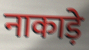
नाकाड़े